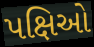
પક્ષિઓ